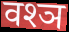
वश्ञ